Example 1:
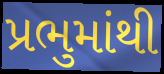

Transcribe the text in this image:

પ્રભુમાંથી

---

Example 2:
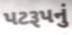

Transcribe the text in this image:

પટરૂપનું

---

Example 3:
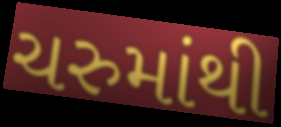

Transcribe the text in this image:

ચરુમાંથી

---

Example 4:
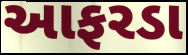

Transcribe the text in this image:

આફરડા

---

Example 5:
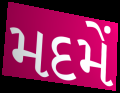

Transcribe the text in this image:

મદમેં